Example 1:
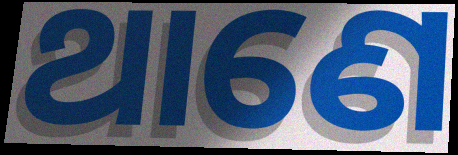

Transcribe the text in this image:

ଥାଣେ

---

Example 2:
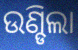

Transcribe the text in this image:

ଉଣ୍ଡିଲା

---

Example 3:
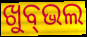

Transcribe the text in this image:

ଖୁବ୍‌ଭଲ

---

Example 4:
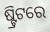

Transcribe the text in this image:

ଷ୍ଟ୍ରିଟରେ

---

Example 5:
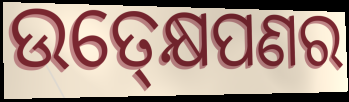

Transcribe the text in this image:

ଉତ୍କ୍ଷେପଣର